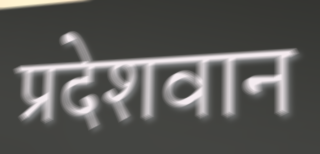
प्रदेशवान